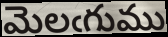
మెలఁగుము